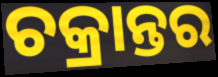
ଚକ୍ରାନ୍ତର